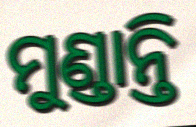
ମୁଣ୍ଡାନ୍ତି